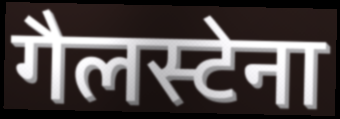
गैलस्टेना